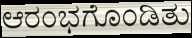
ಆರಂಭಗೊಂಡಿತು